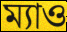
ম্যাও